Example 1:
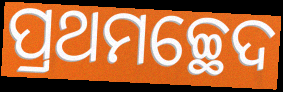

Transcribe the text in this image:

ପ୍ରଥମଚ୍ଛେଦ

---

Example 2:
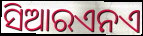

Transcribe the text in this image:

ସିଆରଏନଏ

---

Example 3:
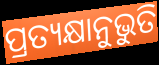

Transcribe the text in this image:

ପ୍ରତ୍ୟକ୍ଷାନୁଭୁତି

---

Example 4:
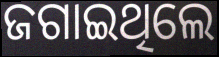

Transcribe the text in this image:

ଜଗାଇଥିଲେ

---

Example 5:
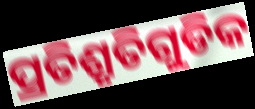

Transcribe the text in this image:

ପ୍ରତିଶ୍ରୃତିଗୁଡିକ